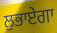
ਲੁਭਾਏਗਾ